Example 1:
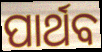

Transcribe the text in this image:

ପାର୍ଥବ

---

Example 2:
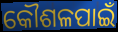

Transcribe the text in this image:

କୌଶଳପାଇଁ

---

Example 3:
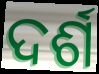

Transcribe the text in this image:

ଦର୍ଶ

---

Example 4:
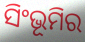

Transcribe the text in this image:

ସିଂଭୂମିର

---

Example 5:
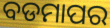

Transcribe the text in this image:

ବଡମାପର